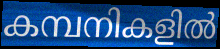
കമ്പനികളിൽ